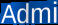
Admi